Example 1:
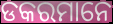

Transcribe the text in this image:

ଡକରମାନେ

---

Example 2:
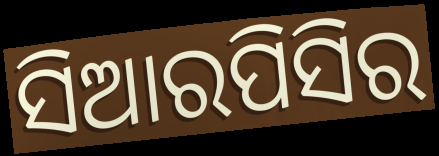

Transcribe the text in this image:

ସିଆରପିସିର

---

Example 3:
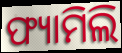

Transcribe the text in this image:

ଫ୍ୟାମିଲି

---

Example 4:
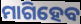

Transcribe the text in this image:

ମାଗିହେବ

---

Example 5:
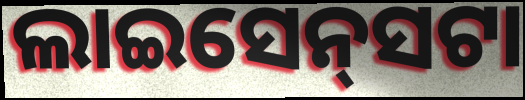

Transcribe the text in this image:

ଲାଇସେନ୍‍ସଟା